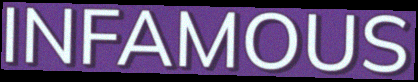
INFAMOUS